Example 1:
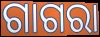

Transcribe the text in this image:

ଗାଗରା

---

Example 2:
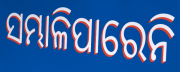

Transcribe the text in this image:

ସମ୍ଭାଳିପାରେନି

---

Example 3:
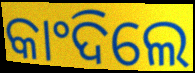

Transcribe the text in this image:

କାଂଦିଲେ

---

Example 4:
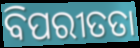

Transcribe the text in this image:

ବିପରୀତତା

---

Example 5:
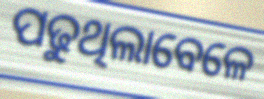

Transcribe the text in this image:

ପଢୁଥିଲାବେଳେ